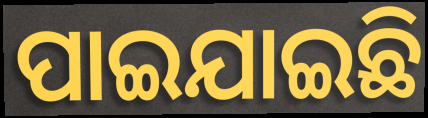
ପାଇଯାଇଛି